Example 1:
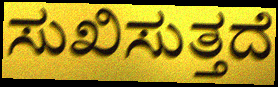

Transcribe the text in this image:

ಸುಖಿಸುತ್ತದೆ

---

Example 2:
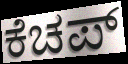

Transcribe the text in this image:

ಕೆಚಪ್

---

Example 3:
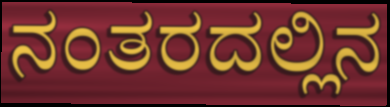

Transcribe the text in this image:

ನಂತರದಲ್ಲಿನ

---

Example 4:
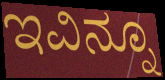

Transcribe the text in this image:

ಇವಿನ್ನೂ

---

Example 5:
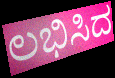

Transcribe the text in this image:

ಲಭಿಸಿದ